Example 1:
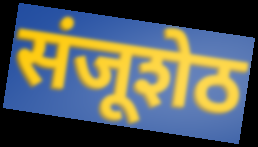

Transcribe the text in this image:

संजूशेठ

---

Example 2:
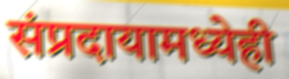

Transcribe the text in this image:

संप्रदायामध्येही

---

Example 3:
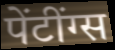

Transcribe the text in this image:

पेंटींग्स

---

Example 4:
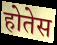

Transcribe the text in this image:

होतेस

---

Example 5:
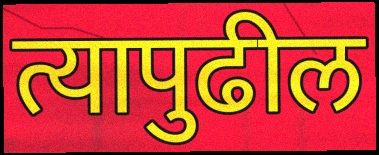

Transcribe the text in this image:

त्यापुढील